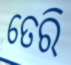
ତେରି